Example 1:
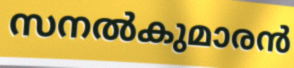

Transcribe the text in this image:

സനൽകുമാരൻ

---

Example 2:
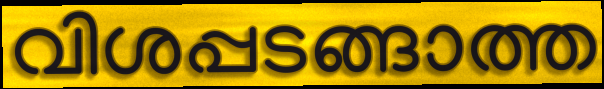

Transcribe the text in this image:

വിശപ്പടങ്ങാത്ത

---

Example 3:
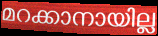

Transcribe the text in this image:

മറക്കാനായില്ല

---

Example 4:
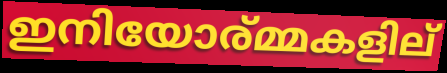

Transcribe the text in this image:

ഇനിയോര്മ്മകളില്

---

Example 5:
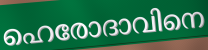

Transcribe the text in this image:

ഹെരോദാവിനെ